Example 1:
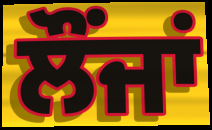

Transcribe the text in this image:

ਲੌਂਜਾਂ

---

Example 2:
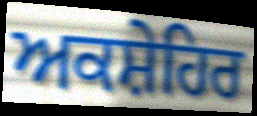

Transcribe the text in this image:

ਅਕਸ਼ੇਹਿਰ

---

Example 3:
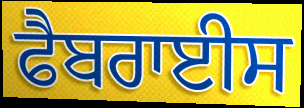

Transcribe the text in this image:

ਫੈਬਰਾਈਸ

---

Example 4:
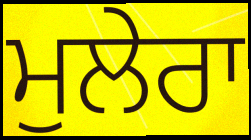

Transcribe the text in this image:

ਮੁਲੇਰਾ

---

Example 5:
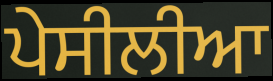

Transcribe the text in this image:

ਪੇਸੀਲੀਆ